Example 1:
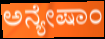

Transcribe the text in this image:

ಅನ್ಯೇಷಾಂ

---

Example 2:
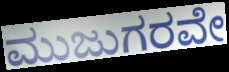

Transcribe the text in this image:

ಮುಜುಗರವೇ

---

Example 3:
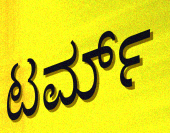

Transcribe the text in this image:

ಟರ್ಮ್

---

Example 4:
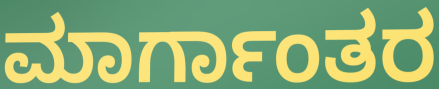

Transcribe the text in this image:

ಮಾರ್ಗಾಂತರ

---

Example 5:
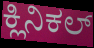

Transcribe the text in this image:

ಕ್ಲಿನಿಕಲ್